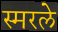
स्मरले